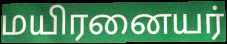
மயிரனையர்